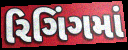
રિગિંગમાં